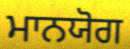
ਮਾਨਯੋਗ